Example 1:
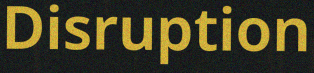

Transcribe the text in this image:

Disruption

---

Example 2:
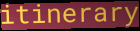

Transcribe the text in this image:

itinerary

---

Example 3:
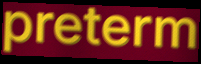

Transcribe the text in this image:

preterm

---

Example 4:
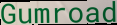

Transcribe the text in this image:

Gumroad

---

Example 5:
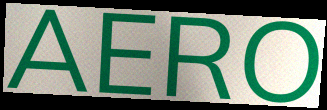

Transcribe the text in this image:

AERO